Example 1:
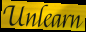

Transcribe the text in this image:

Unlearn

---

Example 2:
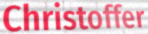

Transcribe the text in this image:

Christoffer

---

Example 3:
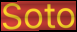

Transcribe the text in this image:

Soto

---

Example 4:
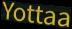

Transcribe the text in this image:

Yottaa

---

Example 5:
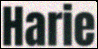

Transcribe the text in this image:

Harie